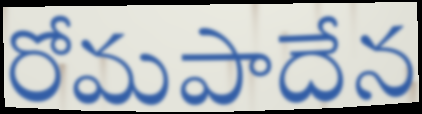
రోమపాదేన